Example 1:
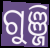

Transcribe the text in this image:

ଗୁଞ୍ଜି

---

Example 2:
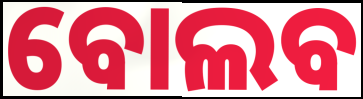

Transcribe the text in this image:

ବୋଲବ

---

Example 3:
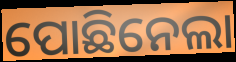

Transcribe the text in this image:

ପୋଛିନେଲା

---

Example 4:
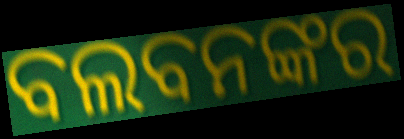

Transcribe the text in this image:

ବଲବନଙ୍କର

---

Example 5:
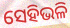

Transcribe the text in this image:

ସେହିଭଳି